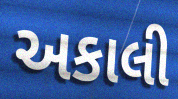
અકાલી